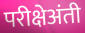
परीक्षेअंती